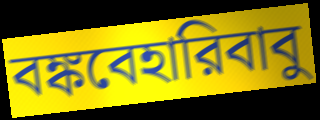
বঙ্কবেহারিবাবু